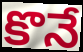
కొనే